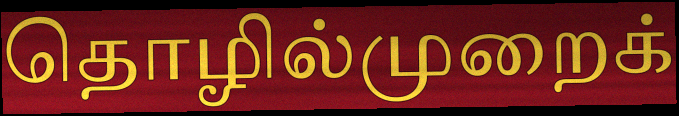
தொழில்முறைக்